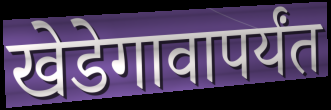
खेडेगावापर्यंत